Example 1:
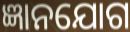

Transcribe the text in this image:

ଜ୍ଞାନଯୋଗ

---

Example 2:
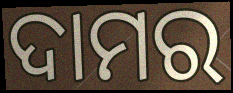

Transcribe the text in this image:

ଦାମର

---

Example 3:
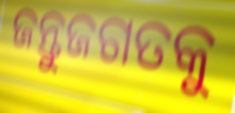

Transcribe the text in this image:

ଜନ୍ତୁଜଗତକୁ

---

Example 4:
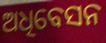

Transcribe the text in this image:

ଅଧିବେସନ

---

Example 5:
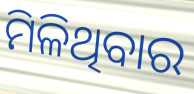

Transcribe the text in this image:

ମିଳିଥିବାର